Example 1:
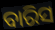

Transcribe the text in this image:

ବାରିସ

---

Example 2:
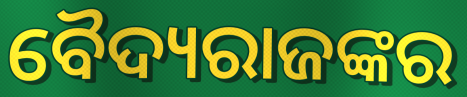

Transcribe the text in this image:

ବୈଦ୍ୟରାଜଙ୍କର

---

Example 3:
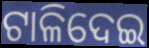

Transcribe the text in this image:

ଟାଳିଦେଇ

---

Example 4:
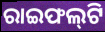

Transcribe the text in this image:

ରାଇଫଲ୍‍ଟି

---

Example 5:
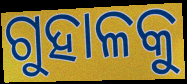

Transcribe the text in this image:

ଗୁହାଳକୁ